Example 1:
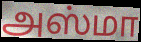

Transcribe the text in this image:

அஸ்மா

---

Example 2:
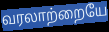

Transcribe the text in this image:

வரலாற்றையே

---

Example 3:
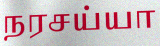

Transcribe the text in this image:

நரசய்யா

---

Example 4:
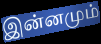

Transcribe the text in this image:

இன்னமும்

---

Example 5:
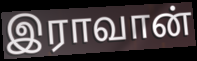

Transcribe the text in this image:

இராவான்